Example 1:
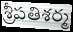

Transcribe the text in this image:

శ్రీపతిశర్మ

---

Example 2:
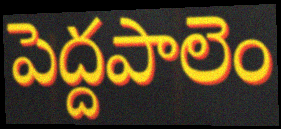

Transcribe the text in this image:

పెద్దపాలెం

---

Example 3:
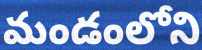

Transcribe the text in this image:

మండంలోని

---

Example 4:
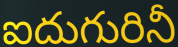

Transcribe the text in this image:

ఐదుగురినీ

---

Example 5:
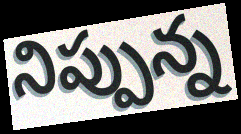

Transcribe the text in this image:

నిప్పున్న